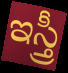
ఇస్త్రీ